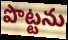
పొట్టను